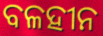
ବଳହୀନ